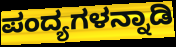
ಪಂದ್ಯಗಳನ್ನಾಡಿ